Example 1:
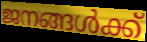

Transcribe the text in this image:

ജനങ്ങൾക്ക്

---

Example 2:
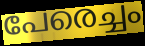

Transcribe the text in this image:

പേരെച്ചം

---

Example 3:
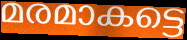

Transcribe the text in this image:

മരമാകട്ടെ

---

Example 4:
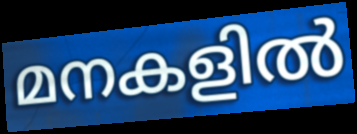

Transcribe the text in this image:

മനകളിൽ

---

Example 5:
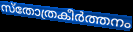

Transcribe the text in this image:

സ്തോത്രകീർത്തനം